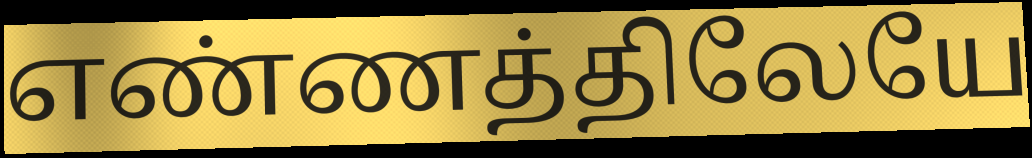
எண்ணத்திலேயே